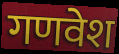
गणवेश